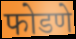
फोडणे